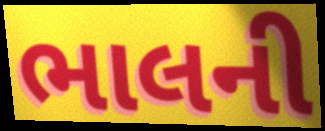
ભાલની